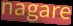
nagare